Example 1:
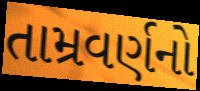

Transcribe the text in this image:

તામ્રવર્ણનો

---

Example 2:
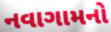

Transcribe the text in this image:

નવાગામનો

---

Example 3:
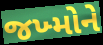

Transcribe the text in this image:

જખ્મોને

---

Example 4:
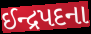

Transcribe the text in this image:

ઈન્દ્રપદના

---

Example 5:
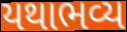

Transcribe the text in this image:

યથાભવ્ય